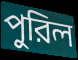
পুরিল